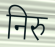
निरु